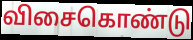
விசைகொண்டு